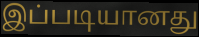
இப்படியானது